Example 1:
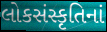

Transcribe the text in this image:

લોકસંસ્કૃતિનાં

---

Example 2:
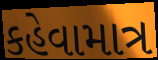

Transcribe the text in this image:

કહેવામાત્ર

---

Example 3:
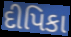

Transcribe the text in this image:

દીપિકા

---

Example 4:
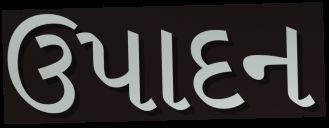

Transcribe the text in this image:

ઉપાદન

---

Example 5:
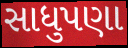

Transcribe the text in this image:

સાધુપણા